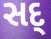
સદ્